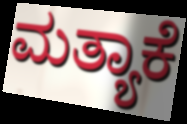
ಮತ್ಯಾಕೆ